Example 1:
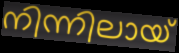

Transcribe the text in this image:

നിന്നിലായ്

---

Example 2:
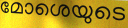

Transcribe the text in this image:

മോശെയുടെ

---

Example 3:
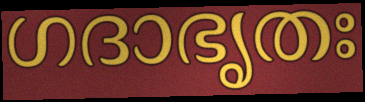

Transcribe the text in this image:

ഗദാഭൃതഃ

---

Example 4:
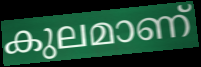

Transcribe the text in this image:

കുലമാണ്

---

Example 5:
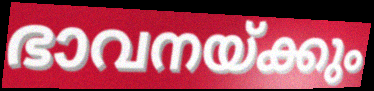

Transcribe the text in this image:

ഭാവനയ്ക്കും